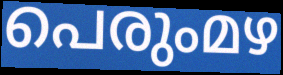
പെരുംമഴ